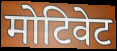
मोटिवेट